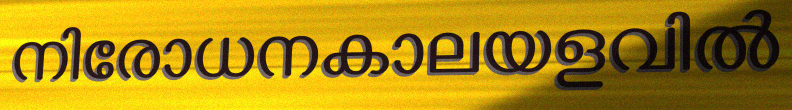
നിരോധനകാലയളവിൽ